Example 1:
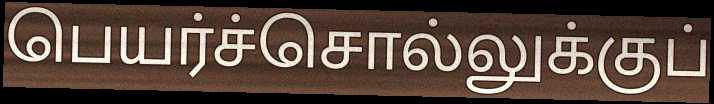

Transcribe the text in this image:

பெயர்ச்சொல்லுக்குப்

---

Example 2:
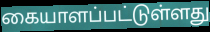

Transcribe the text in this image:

கையாளப்பட்டுள்ளது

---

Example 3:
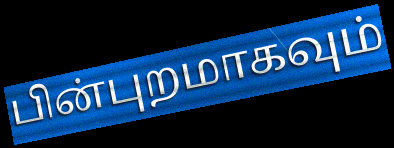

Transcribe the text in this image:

பின்புறமாகவும்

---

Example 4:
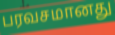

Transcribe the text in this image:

பரவசமானது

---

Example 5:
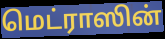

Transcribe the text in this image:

மெட்ராஸின்